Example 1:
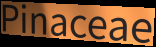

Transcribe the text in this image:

Pinaceae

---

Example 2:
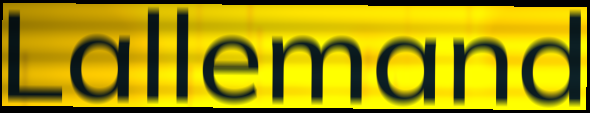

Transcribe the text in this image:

Lallemand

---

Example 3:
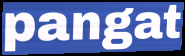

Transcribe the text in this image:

pangat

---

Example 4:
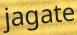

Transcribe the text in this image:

jagate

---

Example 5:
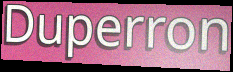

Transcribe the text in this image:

Duperron